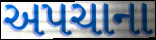
અપચાના